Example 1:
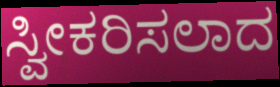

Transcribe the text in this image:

ಸ್ವೀಕರಿಸಲಾದ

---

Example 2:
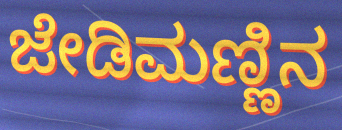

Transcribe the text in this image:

ಜೇಡಿಮಣ್ಣಿನ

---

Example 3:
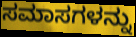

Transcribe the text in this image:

ಸಮಾಸಗಳನ್ನು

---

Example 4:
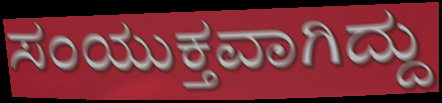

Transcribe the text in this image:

ಸಂಯುಕ್ತವಾಗಿದ್ದು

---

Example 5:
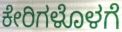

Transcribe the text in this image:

ಕೇರಿಗಳೊಳಗೆ